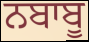
ਨਬਾਬੂ